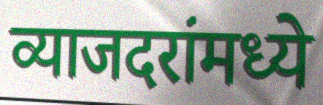
व्याजदरांमध्ये